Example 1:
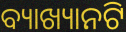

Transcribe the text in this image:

ବ୍ୟାଖ୍ୟାନଟି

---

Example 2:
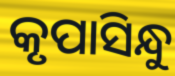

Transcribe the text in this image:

କୃପାସିନ୍ଧୁ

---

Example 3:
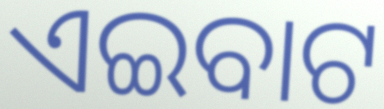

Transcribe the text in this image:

ଏଇବାଟ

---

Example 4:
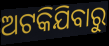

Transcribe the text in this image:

ଅଟକିଯିବାରୁ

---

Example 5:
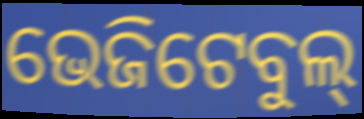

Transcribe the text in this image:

ଭେଜିଟେବୁଲ୍